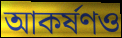
আকর্ষণও